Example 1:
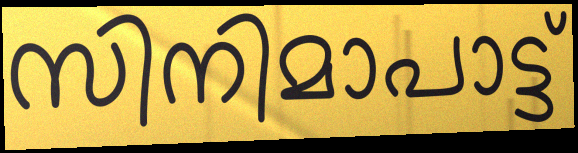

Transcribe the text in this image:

സിനിമാപാട്ട്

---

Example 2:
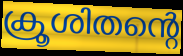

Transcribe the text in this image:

ക്രൂശിതന്റെ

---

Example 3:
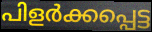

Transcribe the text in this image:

പിളർക്കപ്പെട്ട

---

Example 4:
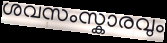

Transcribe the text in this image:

ശവസംസ്കാരവും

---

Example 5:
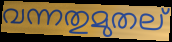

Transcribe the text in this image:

വന്നതുമുതല്